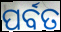
ପର୍ବତ